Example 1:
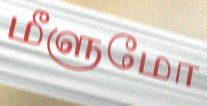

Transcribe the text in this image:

மீளுமோ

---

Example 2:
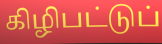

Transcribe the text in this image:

கிழிபட்டுப்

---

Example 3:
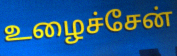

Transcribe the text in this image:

உழைச்சேன்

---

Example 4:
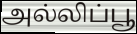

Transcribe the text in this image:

அல்லிப்பூ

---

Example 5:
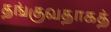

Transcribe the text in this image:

தங்குவதாகத்